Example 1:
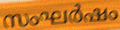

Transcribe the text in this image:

സംഘർഷം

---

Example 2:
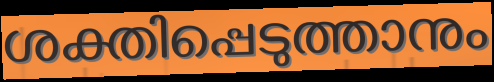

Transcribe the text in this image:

ശക്തിപ്പെടുത്താനും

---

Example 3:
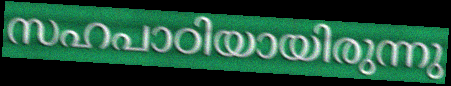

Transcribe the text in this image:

സഹപാഠിയായിരുന്നു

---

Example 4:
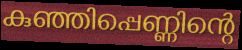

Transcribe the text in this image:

കുഞ്ഞിപ്പെണ്ണിന്റെ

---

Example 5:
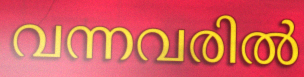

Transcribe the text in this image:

വന്നവരിൽ